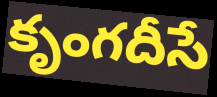
కృంగదీసే